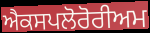
ਐਕਸਪਲੋਰੋਰੀਅਮ